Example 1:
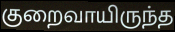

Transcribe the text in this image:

குறைவாயிருந்த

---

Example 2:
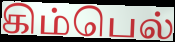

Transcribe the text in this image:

கிம்பெல்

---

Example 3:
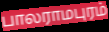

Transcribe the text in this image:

பாலராமபுரம்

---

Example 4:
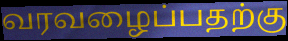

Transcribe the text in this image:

வரவழைப்பதற்கு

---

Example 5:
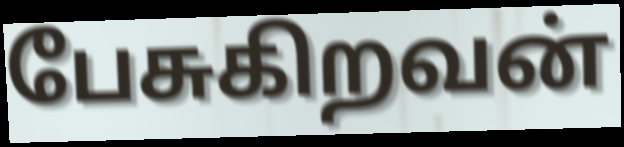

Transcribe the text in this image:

பேசுகிறவன்